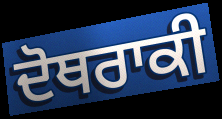
ਦੋਥਰਾਕੀ